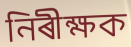
নিৰীক্ষক